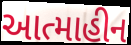
આત્માહીન